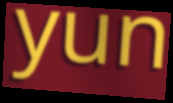
yun